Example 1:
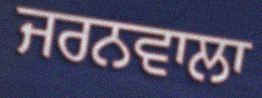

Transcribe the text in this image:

ਜਰਨਵਾਲਾ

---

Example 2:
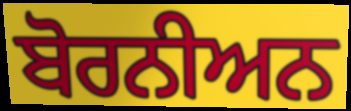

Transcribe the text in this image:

ਬੋਰਨੀਅਨ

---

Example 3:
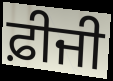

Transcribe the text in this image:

ਫ਼ੀਜੀ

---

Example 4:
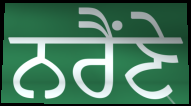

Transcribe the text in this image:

ਨਰੈਂਣੇ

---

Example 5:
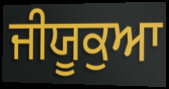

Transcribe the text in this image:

ਜੀਯੂਕੁਆ